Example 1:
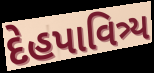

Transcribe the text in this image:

દેહપાવિત્ર્ય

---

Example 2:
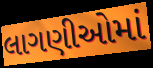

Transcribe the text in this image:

લાગણીઓમાં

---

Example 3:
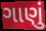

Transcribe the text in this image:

ગાણું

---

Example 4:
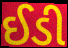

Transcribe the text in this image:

ઈડી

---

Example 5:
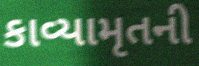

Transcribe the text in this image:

કાવ્યામૃતની